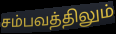
சம்பவத்திலும்